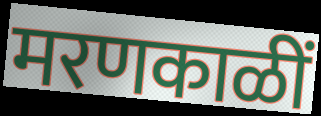
मरणकाळीं